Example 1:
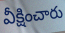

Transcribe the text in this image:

వీక్షించారు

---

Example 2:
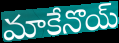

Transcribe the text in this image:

మాకేనొయ్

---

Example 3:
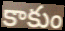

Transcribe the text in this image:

కాకుం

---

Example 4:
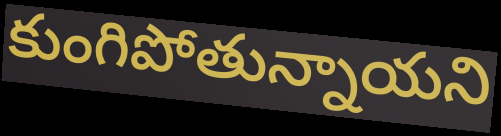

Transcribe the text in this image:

కుంగిపోతున్నాయని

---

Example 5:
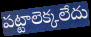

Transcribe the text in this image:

పట్టాలెక్కలేదు